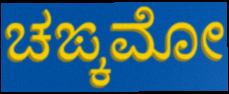
ಚಙ್ಕಮೋ